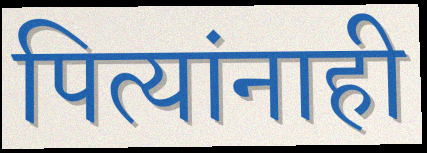
पित्यांनाही